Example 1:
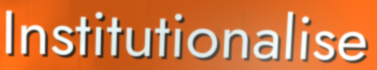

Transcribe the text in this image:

Institutionalise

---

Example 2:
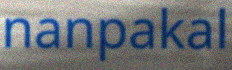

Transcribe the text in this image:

nanpakal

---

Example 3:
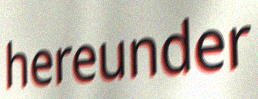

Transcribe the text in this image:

hereunder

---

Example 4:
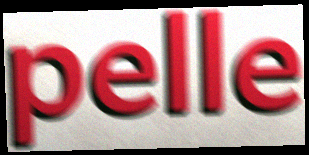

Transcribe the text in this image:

pelle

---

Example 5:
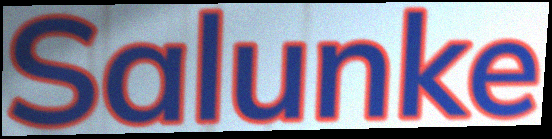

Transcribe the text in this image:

Salunke